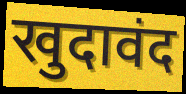
खुदावंद